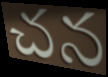
చన